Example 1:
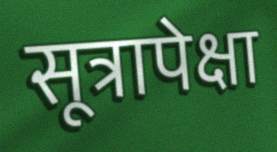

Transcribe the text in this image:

सूत्रापेक्षा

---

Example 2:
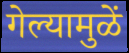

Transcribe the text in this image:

गेल्यामुळें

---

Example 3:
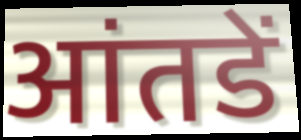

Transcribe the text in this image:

आंतडें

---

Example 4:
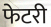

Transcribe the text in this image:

फेटरी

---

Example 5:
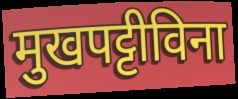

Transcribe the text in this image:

मुखपट्टीविना